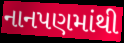
નાનપણમાંથી